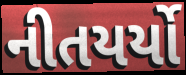
નીતયર્યો